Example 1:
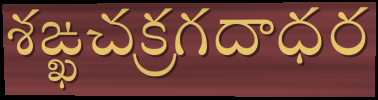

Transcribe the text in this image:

శఙ్ఖచక్రగదాధర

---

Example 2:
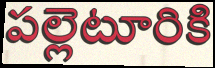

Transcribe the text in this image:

పల్లెటూరికి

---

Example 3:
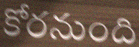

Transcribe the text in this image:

కోరనుంది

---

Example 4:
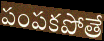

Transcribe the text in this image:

పంపకపోతే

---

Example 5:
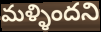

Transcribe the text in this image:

మళ్ళిందని